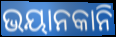
ଭୟାନକାନି